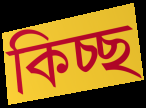
কিচ্ছ